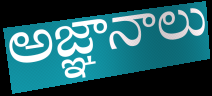
అజ్ఞానాలు